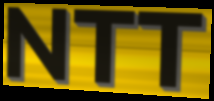
NTT